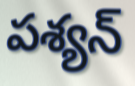
పశ్యన్